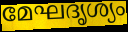
മേഘദൃശ്യം